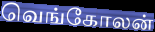
வெங்கோலன்